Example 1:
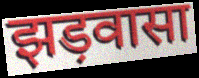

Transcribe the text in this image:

झड़वासा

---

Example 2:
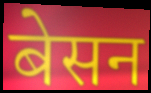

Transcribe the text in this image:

बेसन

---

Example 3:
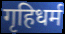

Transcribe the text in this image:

गृहिधर्म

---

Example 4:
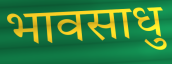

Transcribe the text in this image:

भावसाधु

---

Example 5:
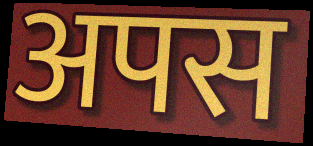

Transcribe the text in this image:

अपस